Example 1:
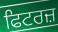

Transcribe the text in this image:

ਫਿਟਰਜ਼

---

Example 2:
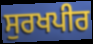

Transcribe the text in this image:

ਸੁਰਖਪੀਰ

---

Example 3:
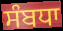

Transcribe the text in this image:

ਸੰਬਧਾ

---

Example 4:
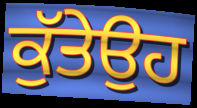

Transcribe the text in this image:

ਕੁੱਤੇਉਹ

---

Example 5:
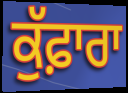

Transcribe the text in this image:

ਕੁੱਫ਼ਾਰਾ